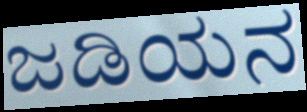
ಜಡಿಯನ